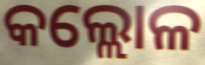
କଲ୍ଲୋଳ